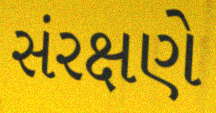
સંરક્ષણે